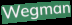
Wegman